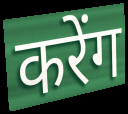
करेंग